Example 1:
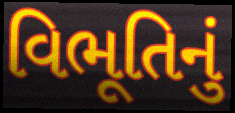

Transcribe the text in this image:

વિભૂતિનું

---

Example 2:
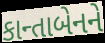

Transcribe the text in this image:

કાન્તાબેનને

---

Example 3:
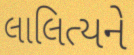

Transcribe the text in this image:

લાલિત્યને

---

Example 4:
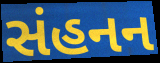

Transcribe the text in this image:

સંહનન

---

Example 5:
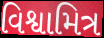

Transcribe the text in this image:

વિશ્વામિત્ર